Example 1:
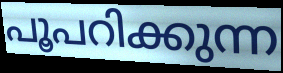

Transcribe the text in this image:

പൂപറിക്കുന്ന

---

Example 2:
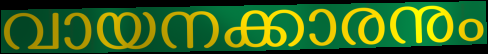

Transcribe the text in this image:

വായനക്കാരനും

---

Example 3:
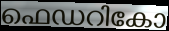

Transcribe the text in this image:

ഫെഡറികോ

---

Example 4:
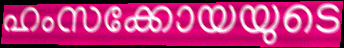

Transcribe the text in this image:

ഹംസക്കോയയുടെ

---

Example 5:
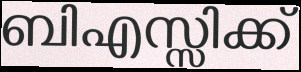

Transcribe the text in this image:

ബിഎസ്സിക്ക്